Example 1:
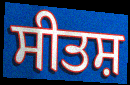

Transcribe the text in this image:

ਸੀਤਸ਼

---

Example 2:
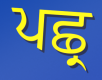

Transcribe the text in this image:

ਪਛ੍ਰ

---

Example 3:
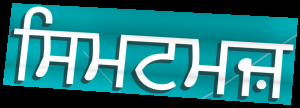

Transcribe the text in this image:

ਸਿਮਟਮਜ਼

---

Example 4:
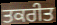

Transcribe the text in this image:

ਤਕਰੀਤ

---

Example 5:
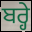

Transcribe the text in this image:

ਬਰ੍ਹੇ